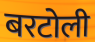
बरटोली